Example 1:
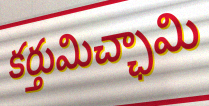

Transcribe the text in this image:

కర్తుమిచ్ఛామి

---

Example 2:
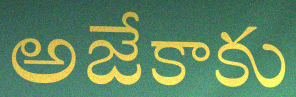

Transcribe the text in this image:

అజేకాకు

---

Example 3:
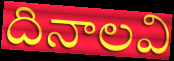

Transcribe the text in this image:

దినాలవి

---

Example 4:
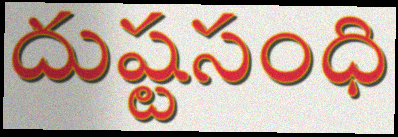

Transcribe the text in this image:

దుష్టసంధి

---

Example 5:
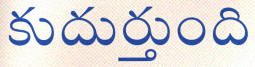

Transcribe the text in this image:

కుదుర్తుంది